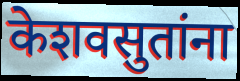
केशवसुतांना